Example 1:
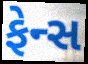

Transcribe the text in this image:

ફેન્સ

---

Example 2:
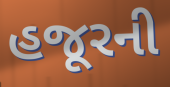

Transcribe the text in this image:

હજૂરની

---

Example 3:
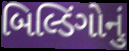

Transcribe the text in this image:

બિલ્ડિંગોનું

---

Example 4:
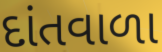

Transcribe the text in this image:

દાંતવાળા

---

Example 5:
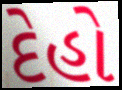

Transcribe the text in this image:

દેહો